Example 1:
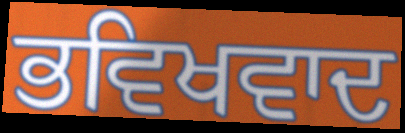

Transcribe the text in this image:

ਭਵਿਖਵਾਦ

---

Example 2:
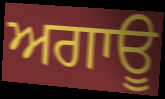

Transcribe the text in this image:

ਅਗਾਊ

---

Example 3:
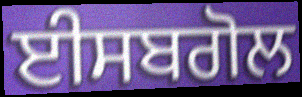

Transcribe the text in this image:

ਈਸਬਗੋਲ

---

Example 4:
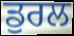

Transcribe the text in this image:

ਡੁਰਲ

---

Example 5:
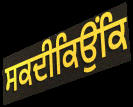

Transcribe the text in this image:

ਸਕਦੀਕਿਉਂਕਿ